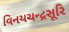
વિનયચન્દ્રસૂરિ